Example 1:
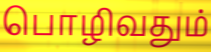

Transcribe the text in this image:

பொழிவதும்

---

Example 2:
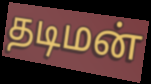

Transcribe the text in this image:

தடிமன்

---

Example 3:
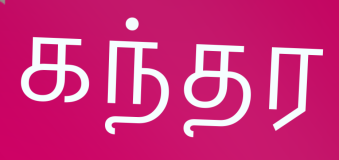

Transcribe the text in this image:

கந்தர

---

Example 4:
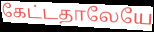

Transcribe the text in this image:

கேட்டதாலேயே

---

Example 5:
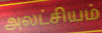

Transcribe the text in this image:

அலட்சியம்